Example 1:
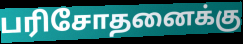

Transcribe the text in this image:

பரிசோதனைக்கு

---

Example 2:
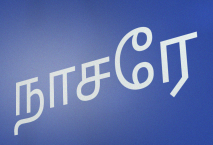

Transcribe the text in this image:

நாசரே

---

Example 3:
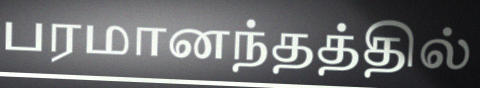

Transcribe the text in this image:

பரமானந்தத்தில்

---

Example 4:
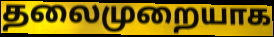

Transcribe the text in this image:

தலைமுறையாக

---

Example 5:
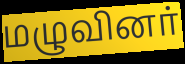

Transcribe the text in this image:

மழுவினர்